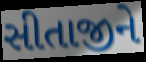
સીતાજીને